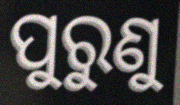
ପୁରୁଣୁ